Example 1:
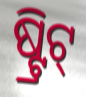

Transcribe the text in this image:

ଷ୍ଟ୍ରିଟ୍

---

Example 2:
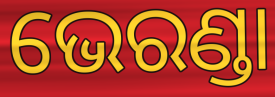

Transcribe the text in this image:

ଭେରଣ୍ଡା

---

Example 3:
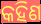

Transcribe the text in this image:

କହିଣ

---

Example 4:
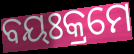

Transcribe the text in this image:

ବୟଃକ୍ରମେ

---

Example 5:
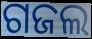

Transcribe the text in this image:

ଗଜଲ